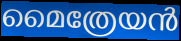
മൈത്രേയൻ